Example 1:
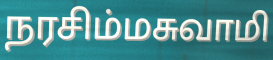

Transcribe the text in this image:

நரசிம்மசுவாமி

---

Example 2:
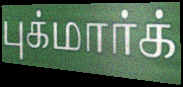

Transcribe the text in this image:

புக்மார்க்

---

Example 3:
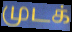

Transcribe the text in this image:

முடக்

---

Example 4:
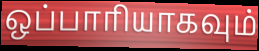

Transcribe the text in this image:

ஒப்பாரியாகவும்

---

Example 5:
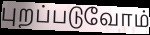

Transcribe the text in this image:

புறப்படுவோம்